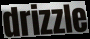
drizzle